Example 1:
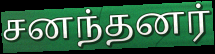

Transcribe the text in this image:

சனந்தனர்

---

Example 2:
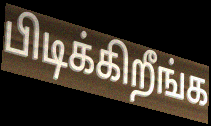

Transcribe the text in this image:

பிடிக்கிறீங்க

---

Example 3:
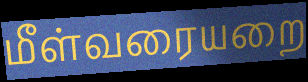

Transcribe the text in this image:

மீள்வரையறை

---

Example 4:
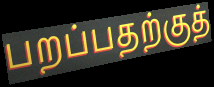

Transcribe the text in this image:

பறப்பதற்குத்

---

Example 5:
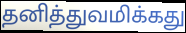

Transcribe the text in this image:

தனித்துவமிக்கது